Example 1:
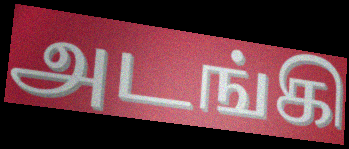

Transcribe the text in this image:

அடங்கி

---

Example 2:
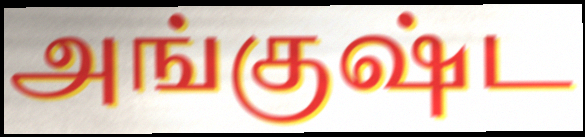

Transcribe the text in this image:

அங்குஷ்ட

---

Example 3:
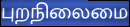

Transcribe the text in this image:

புறநிலைமை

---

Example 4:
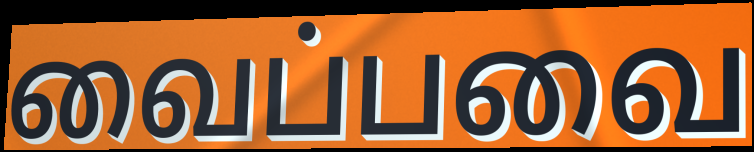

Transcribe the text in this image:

வைப்பவை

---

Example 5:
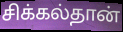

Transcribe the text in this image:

சிக்கல்தான்